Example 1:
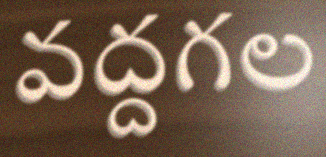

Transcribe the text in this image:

వద్దగల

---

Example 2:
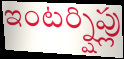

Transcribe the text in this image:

ఇంటర్న్షిప్లు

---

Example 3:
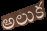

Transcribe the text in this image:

అలుక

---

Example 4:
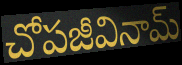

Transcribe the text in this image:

చోపజీవినామ్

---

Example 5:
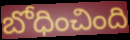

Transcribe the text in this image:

బోధించింది